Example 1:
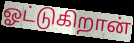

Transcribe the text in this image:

ஓட்டுகிறான்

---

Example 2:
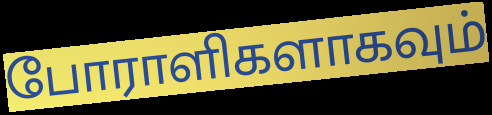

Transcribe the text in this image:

போராளிகளாகவும்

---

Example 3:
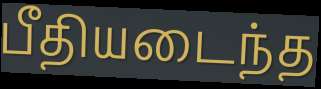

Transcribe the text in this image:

பீதியடைந்த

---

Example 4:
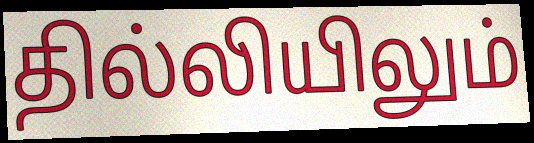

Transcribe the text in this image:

தில்லியிலும்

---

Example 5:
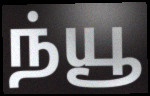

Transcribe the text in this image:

ந்யூ